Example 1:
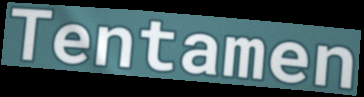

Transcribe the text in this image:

Tentamen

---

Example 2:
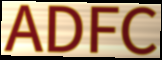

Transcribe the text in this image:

ADFC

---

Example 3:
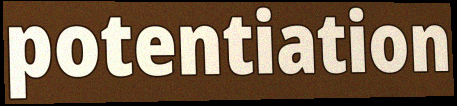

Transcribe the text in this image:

potentiation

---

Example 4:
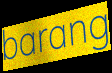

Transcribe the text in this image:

barang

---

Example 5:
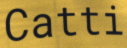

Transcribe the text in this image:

Catti